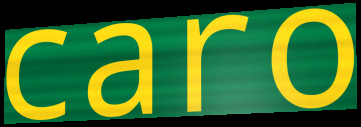
caro